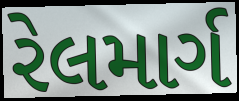
રેલમાર્ગ